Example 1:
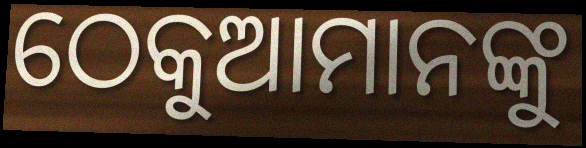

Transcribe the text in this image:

ଠେକୁଆମାନଙ୍କୁ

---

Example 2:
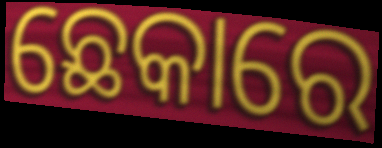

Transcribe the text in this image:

ଛେକାରେ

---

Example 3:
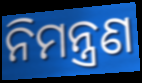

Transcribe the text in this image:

ନିମନ୍ତ୍ରଣ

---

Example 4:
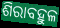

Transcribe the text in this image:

ଶିରାବହୁଳ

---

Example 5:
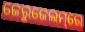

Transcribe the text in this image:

ଜେରୁଜେଲମ୍‌ରେ